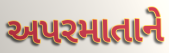
અપરમાતાને